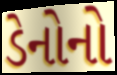
ડેનોનો